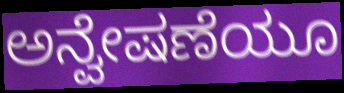
ಅನ್ವೇಷಣೆಯೂ